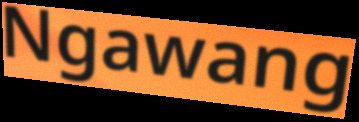
Ngawang